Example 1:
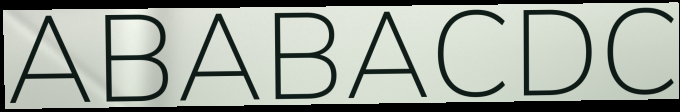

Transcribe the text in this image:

ABABACDC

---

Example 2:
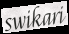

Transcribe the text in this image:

swikari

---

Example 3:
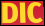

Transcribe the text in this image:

DIC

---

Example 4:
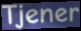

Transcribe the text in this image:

Tjener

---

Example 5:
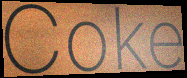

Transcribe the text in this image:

Coke